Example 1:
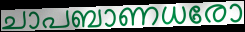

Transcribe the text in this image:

ചാപബാണധരോ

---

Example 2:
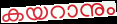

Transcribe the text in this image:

കയറാനും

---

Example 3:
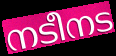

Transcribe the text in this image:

നടീനട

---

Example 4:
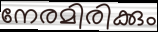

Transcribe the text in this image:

നേരമിരിക്കും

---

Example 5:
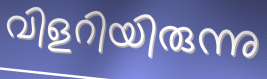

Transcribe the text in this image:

വിളറിയിരുന്നു